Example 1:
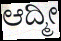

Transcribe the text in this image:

ಆದ್ಮೀ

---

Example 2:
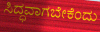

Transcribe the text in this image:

ಸಿದ್ಧವಾಗಬೇಕೆಂದು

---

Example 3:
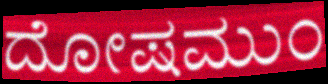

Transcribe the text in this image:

ದೋಷಮುಂ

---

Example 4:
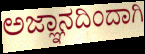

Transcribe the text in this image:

ಅಜ್ಞಾನದಿಂದಾಗಿ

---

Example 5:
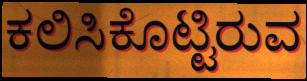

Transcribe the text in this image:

ಕಲಿಸಿಕೊಟ್ಟಿರುವ